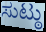
ಸುಟ್ಠು